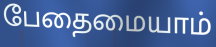
பேதைமையாம்